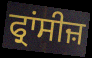
ਫ੍ਰਾਂਸੀਜ਼